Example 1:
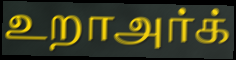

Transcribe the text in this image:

உறாஅர்க்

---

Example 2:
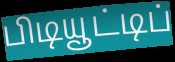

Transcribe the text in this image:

பிடியூட்டிப்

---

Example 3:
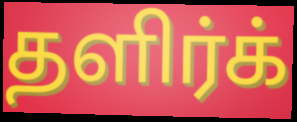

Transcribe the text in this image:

தளிர்க்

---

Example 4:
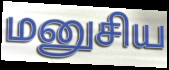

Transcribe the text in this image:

மனுசிய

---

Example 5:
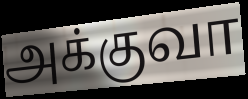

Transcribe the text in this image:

அக்குவா